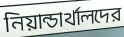
নিয়ান্ডার্থালদের